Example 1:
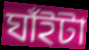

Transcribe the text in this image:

ঘাঁইটা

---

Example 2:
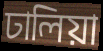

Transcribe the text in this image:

ঢালিয়া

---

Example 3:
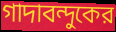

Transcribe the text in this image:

গাদাবন্দুকের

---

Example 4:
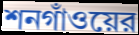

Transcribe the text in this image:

শনগাঁওয়ের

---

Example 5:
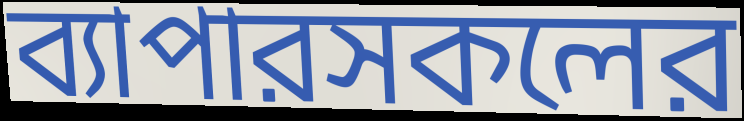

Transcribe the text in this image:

ব্যাপারসকলের